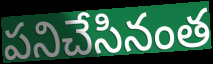
పనిచేసినంత